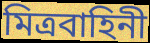
মিত্রবাহিনী